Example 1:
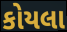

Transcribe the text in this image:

કોયલા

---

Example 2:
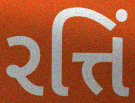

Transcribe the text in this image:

રત્તિં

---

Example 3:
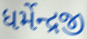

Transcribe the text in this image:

ધર્મેન્દ્રજી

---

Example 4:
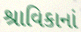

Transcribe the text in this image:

શ્રાવિકાનાં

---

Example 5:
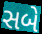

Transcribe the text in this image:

સબે